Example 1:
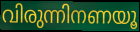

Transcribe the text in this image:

വിരുന്നിനണയൂ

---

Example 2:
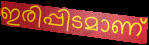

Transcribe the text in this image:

ഇരിപ്പിടമാണ്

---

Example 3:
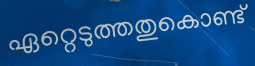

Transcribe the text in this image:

ഏറ്റെടുത്തതുകൊണ്ട്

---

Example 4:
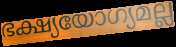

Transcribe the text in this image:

ഭക്ഷ്യയോഗ്യമല്ല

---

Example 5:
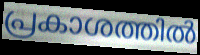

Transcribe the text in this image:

പ്രകാശത്തിൽ